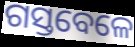
ଗସ୍ତବେଳେ